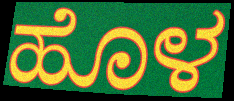
ಹೊಳ